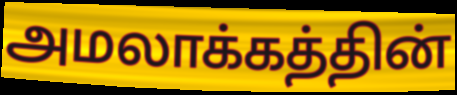
அமலாக்கத்தின்